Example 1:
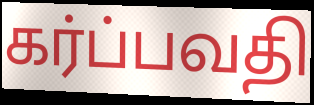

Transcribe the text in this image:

கர்ப்பவதி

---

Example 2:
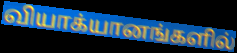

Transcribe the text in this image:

வியாக்யானங்களில்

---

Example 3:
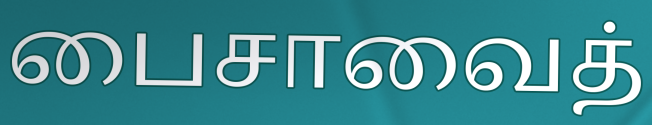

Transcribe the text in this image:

பைசாவைத்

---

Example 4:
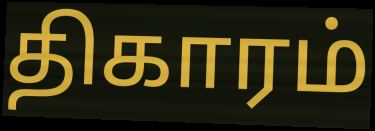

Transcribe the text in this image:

திகாரம்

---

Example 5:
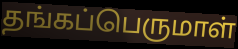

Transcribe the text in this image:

தங்கப்பெருமாள்